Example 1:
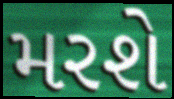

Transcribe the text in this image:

મરશે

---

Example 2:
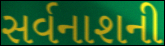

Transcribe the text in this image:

સર્વનાશની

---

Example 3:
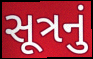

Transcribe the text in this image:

સૂત્રનું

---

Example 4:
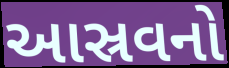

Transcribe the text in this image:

આસ્રવનો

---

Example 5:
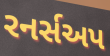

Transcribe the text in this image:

રનર્સઅપ